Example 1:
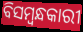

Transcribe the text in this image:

ବିସମ୍ବନ୍ଧକାରୀ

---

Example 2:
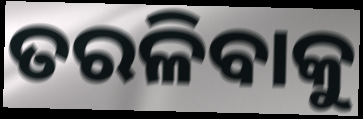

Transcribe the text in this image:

ତରଳିବାକୁ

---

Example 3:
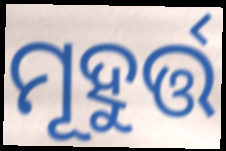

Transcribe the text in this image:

ମୂହୁର୍ତ୍ତ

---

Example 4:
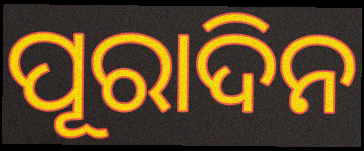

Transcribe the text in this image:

ପୂରାଦିନ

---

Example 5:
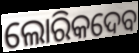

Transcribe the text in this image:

ଲୋରିକଦେବ